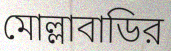
মোল্লাবাডির